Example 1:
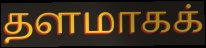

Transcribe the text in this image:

தளமாகக்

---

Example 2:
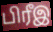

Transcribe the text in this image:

பிரீஇ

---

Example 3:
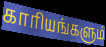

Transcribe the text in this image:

காரியங்களும்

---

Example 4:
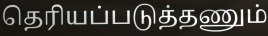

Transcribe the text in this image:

தெரியப்படுத்தணும்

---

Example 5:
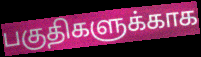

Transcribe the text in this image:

பகுதிகளுக்காக